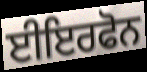
ਈਇਰਫੋਨ